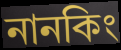
নানকিং